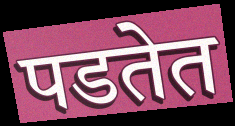
पडतेत